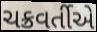
ચક્રવર્તીએ